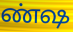
ண்ஷ